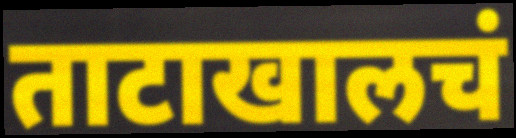
ताटाखालचं